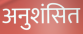
अनुशंसित